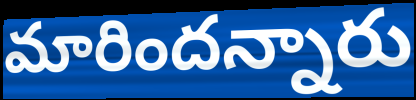
మారిందన్నారు